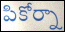
పికోర్నా